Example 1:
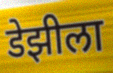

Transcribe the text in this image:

डेझीला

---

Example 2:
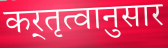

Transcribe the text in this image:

कर्तृत्वानुसार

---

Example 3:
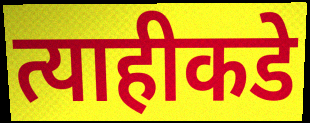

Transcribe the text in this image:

त्याहीकडे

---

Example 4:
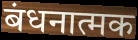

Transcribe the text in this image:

बंधनात्मक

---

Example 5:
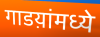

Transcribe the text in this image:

गाडय़ांमध्ये